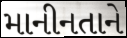
માનીનતાને